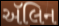
ઍલિન